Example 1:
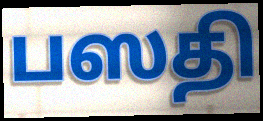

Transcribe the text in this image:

பஸதி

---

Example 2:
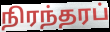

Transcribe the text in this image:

நிரந்தரப்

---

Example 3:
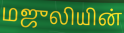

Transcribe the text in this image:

மஜுலியின்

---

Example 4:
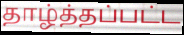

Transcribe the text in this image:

தாழ்த்தப்பட்ட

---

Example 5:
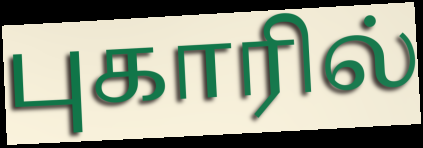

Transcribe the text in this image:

புகாரில்